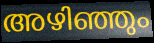
അഴിഞ്ഞും